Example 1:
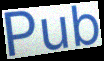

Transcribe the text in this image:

Pub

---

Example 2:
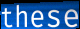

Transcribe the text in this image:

these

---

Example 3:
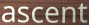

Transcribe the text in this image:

ascent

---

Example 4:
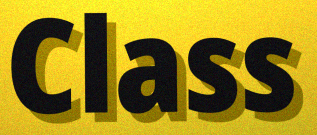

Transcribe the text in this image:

Class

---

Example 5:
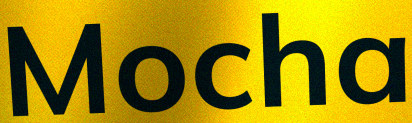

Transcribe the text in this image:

Mocha